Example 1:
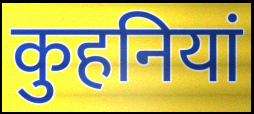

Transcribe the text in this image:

कुहनियां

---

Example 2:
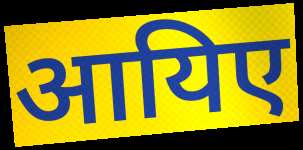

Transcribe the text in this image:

आयिए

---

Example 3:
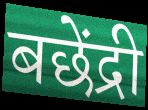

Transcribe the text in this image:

बछेंद्री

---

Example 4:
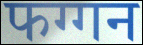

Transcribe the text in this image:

फग्‍गन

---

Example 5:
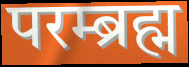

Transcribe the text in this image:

परम्ब्रह्म